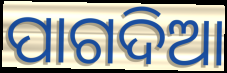
ପାଗଦିଆ